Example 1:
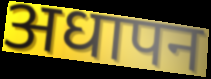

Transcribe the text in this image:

अधापन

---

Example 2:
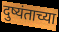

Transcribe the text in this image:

दुष्यंताच्या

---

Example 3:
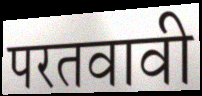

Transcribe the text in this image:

परतवावी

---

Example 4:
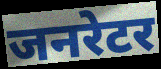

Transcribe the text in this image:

जनरेटर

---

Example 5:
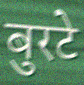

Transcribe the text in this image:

बुरटे